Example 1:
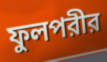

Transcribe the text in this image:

ফুলপরীর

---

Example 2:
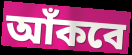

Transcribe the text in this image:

আঁকবে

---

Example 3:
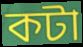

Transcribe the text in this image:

কটা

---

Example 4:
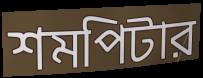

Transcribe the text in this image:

শমপিটার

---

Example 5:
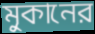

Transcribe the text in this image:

মুকানের